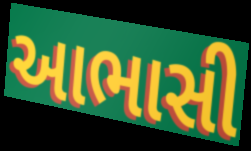
આભાસી